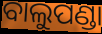
ବାଲୁପଣ୍ଡା